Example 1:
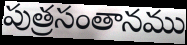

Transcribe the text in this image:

పుత్రసంతానము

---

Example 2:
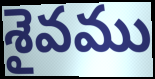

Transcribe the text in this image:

శైవము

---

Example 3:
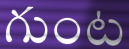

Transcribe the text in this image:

గుంట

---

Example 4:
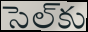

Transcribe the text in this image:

సెల్‌కు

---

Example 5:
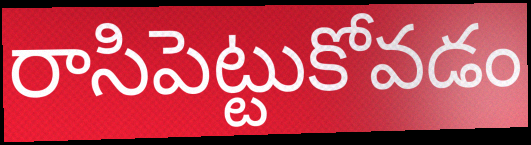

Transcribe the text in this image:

రాసిపెట్టుకోవడం